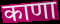
काणा